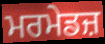
ਮਰਮੇਡਜ਼